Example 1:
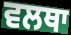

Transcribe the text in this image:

ਵਲਥਾ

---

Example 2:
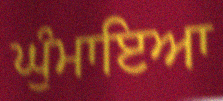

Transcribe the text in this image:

ਘੁੰਮਾਇਆ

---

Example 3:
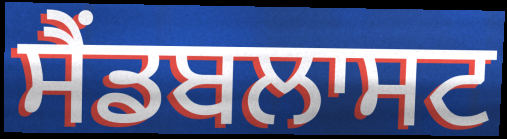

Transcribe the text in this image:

ਸੈਂਡਬਲਾਸਟ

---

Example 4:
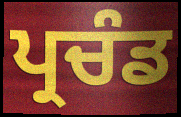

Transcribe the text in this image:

ਪ੍ਰਚੰਡ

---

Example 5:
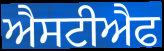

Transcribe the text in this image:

ਐਸਟੀਐਫ